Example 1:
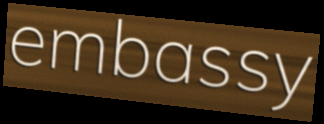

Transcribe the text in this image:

embassy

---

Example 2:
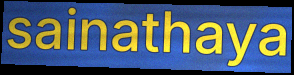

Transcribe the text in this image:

sainathaya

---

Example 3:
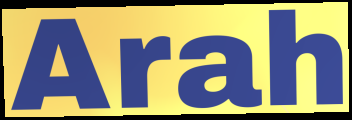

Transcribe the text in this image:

Arah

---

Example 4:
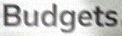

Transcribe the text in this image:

Budgets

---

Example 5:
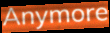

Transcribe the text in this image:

Anymore